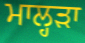
ਮਾਲ੍ਹੜਾ